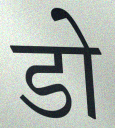
डो